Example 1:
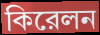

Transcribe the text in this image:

কিরেলন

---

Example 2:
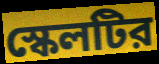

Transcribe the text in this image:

স্কেলটির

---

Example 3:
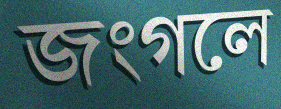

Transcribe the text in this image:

জংগলে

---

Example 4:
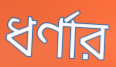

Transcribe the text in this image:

ধর্ণার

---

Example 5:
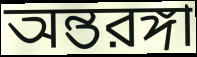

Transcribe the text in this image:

অন্তরঙ্গা